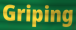
Griping